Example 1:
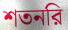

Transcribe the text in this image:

শতনরি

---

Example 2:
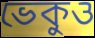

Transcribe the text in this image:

ভেকুও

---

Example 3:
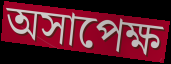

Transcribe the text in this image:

অসাপেক্ষ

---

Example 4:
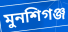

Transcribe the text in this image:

মুনশিগঞ্জ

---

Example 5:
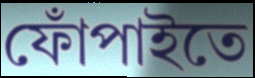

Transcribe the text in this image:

ফোঁপাইতে